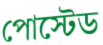
পোস্টেড